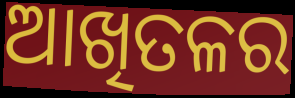
ଆଖିତଳର